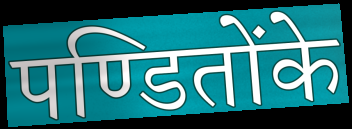
पण्डितोंके